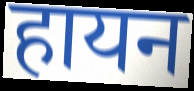
हायन